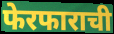
फेरफाराची